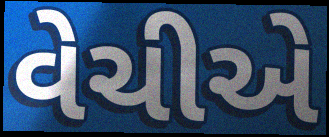
વેચીએ